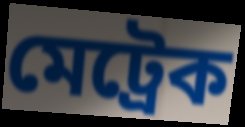
মেট্রেক